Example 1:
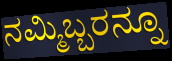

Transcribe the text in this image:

ನಮ್ಮಿಬ್ಬರನ್ನೂ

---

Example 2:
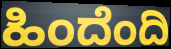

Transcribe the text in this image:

ಹಿಂದೆಂದಿ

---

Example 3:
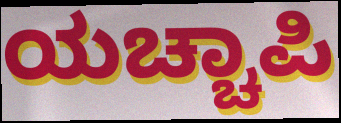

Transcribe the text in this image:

ಯಚ್ಚಾಪಿ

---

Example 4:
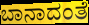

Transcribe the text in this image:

ಬಾನಾದಂತೆ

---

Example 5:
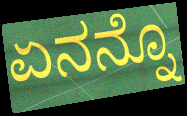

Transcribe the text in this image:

ಏನನ್ನೊ